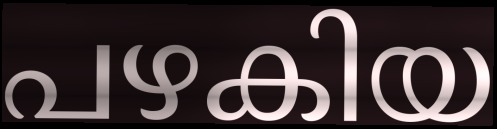
പഴകിയ